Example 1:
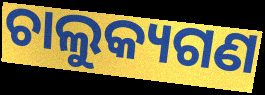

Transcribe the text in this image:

ଚାଲୁକ୍ୟଗଣ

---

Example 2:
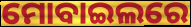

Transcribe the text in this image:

ମୋବାଇଲରେ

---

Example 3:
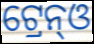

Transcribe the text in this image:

ଟ୍ରେନ୍ଓ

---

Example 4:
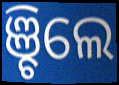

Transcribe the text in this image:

ଞ୍ଚିଲେ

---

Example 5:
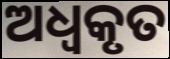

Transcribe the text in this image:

ଅଧ୍ବକୃତ